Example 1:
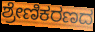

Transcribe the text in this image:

ಶ್ರೇಣಿಕರಣದ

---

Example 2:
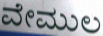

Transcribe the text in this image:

ವೇಮುಲ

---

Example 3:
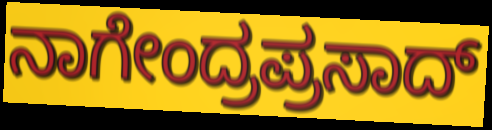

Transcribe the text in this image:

ನಾಗೇಂದ್ರಪ್ರಸಾದ್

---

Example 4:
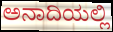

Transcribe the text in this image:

ಅನಾದಿಯಲ್ಲಿ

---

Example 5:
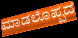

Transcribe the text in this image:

ಮಾಡಲೊಪ್ಪದ